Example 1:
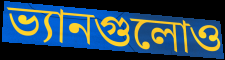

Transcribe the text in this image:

ভ্যানগুলোও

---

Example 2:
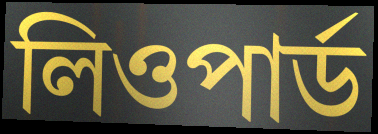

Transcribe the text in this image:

লিওপার্ড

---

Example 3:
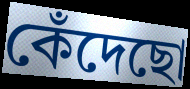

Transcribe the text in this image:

কেঁদেছো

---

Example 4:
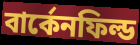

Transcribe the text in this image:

বার্কেনফিল্ড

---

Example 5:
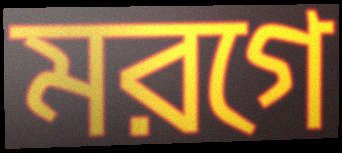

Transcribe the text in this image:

মরগে